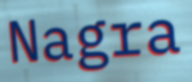
Nagra